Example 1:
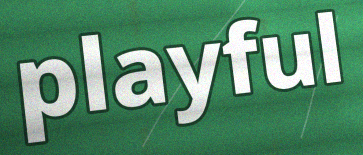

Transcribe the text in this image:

playful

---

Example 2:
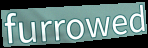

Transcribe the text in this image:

furrowed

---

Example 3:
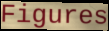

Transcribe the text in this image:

Figures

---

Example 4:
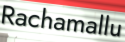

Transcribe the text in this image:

Rachamallu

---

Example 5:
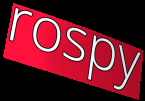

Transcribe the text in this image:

rospy